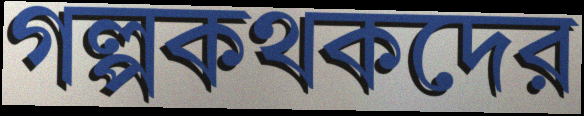
গল্পকথকদের